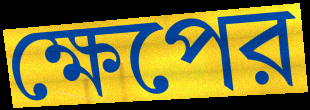
ক্ষেপের